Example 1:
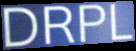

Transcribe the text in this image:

DRPL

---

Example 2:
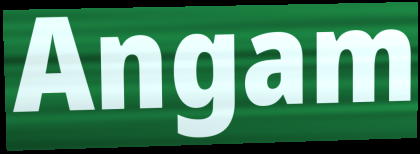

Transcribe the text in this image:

Angam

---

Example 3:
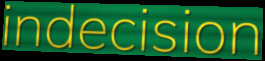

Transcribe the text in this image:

indecision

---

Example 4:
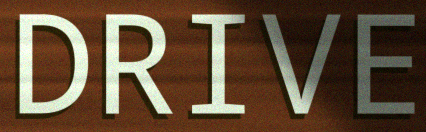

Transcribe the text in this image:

DRIVE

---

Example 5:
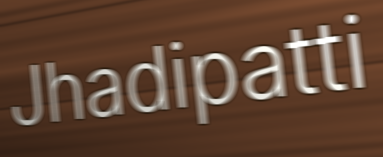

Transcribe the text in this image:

Jhadipatti